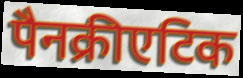
पैनक्रीएटिक